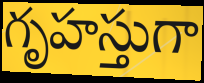
గృహస్తుగా